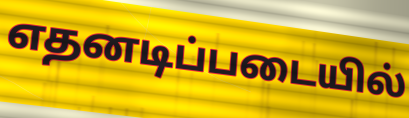
எதனடிப்படையில்